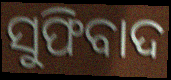
ସୁଫିବାଦ